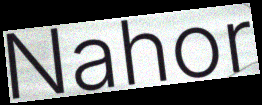
Nahor